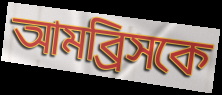
আমব্রিসকে